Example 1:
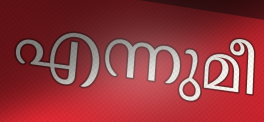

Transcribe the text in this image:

എന്നുമീ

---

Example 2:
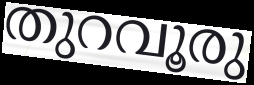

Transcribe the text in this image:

തുറവൂരു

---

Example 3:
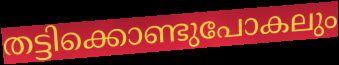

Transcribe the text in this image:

തട്ടിക്കൊണ്ടുപോകലും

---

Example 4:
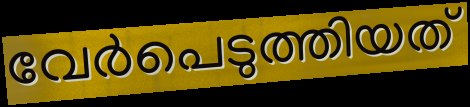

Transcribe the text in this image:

വേർപെടുത്തിയത്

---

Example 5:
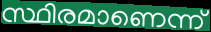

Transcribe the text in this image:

സ്ഥിരമാണെന്ന്